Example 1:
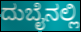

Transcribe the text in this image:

ದುಬೈನಲ್ಲಿ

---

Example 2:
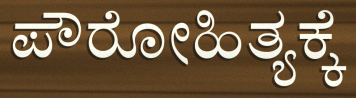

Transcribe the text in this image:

ಪೌರೋಹಿತ್ಯಕ್ಕೆ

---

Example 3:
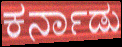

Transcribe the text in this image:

ಕರ್ನಾಡು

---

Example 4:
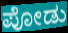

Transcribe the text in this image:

ಪೋಡು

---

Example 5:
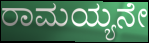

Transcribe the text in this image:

ರಾಮಯ್ಯನೇ